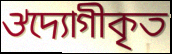
ঔদ্যোগীকৃত